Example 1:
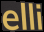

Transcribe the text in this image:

elli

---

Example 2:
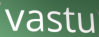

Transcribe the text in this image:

vastu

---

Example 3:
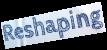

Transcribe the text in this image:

Reshaping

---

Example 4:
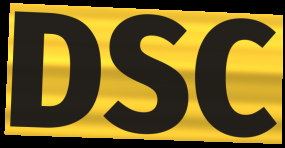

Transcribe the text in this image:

DSC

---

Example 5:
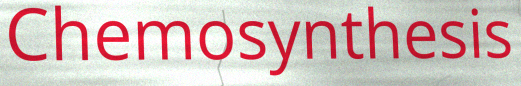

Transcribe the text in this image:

Chemosynthesis